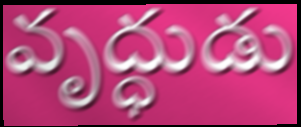
వృద్ధుడు